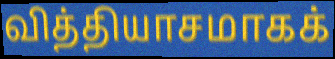
வித்தியாசமாகக்